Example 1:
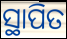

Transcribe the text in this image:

ସ୍ଥାପିତ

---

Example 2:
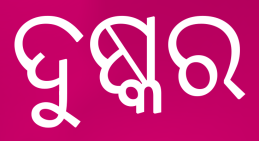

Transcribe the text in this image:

ଦୁଷ୍କର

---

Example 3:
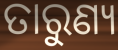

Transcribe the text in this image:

ତାରୁଣ୍ୟ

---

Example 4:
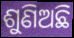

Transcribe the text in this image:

ଶୁଣିଅଛି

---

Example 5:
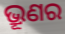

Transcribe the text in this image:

ଭ୍ରୂଣର